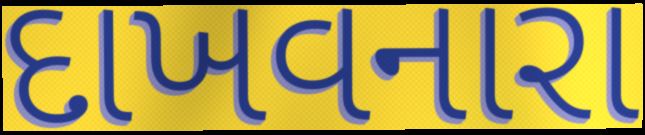
દાખવનારા